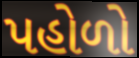
પહોળો